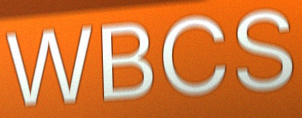
WBCS